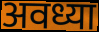
अवध्या